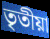
তৃতীয়া